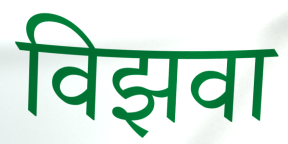
विझवा